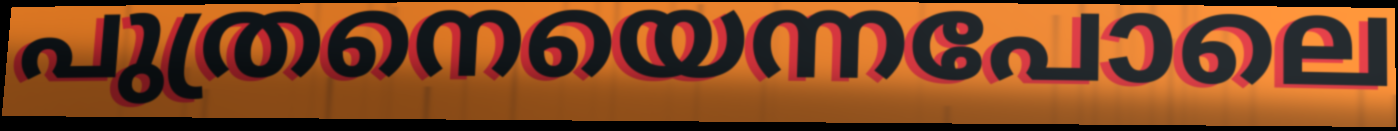
പുത്രനെയെന്നപോലെ